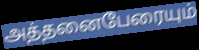
அத்தனைபேரையும்